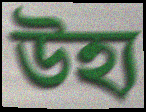
উহ্য